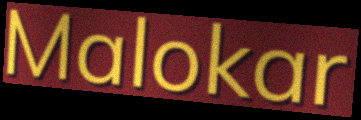
Malokar